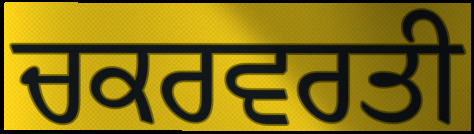
ਚਕਰਵਰਤੀ